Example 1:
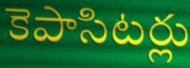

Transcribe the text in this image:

కెపాసిటర్లు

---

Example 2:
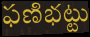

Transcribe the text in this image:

ఫణిభట్టు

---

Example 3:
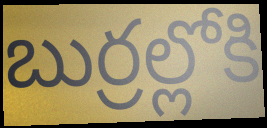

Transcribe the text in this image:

బుర్రల్లోకి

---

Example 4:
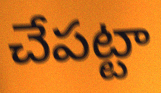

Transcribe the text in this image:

చేపట్టా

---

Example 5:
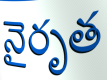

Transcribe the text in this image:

నైరృత